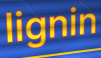
lignin